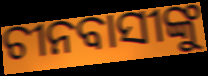
ଚୀନବାସୀଙ୍କୁ